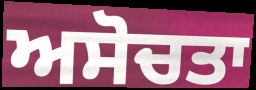
ਅਸੋਚਤਾ